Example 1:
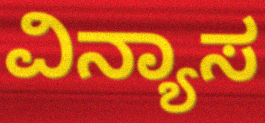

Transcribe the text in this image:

ವಿನ್ಯಾಸ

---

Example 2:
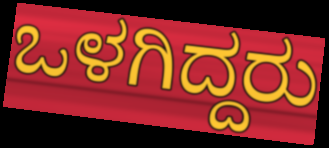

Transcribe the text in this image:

ಒಳಗಿದ್ದರು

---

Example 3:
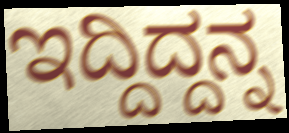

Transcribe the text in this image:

ಇದ್ದಿದ್ದನ್ನ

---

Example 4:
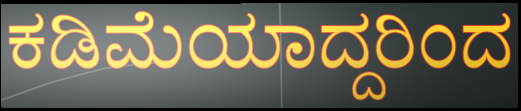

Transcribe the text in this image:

ಕಡಿಮೆಯಾದ್ದರಿಂದ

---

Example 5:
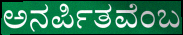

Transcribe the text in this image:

ಅನರ್ಪಿತವೆಂಬ